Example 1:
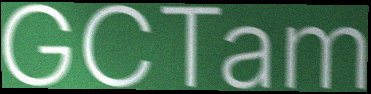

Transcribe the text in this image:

GCTam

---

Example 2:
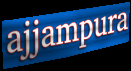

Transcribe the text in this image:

ajjampura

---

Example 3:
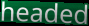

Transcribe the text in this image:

headed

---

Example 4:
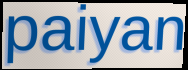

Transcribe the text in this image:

paiyan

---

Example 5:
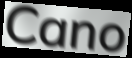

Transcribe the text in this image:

Cano